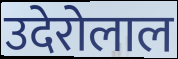
उदेरोलाल